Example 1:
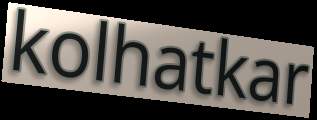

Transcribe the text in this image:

kolhatkar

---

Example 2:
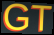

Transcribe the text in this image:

GT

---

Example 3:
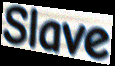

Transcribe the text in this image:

Slave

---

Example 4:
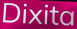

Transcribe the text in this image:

Dixita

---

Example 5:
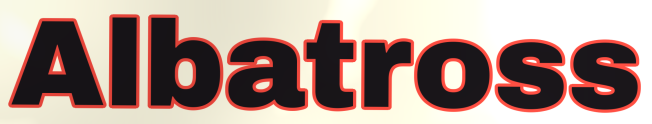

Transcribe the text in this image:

Albatross